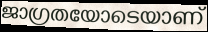
ജാഗ്രതയോടെയാണ്